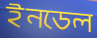
ইনডেল